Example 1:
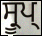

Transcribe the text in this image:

ਸ੍ਰੂਪ੍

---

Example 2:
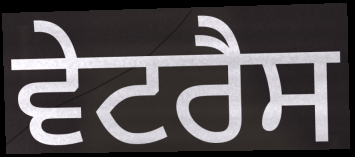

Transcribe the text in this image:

ਵੇਟਰੈਸ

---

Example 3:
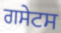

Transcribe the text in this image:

ਗਸੇਟਸ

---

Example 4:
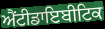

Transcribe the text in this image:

ਐਂਟੀਡਾਇਬੀਟਿਕ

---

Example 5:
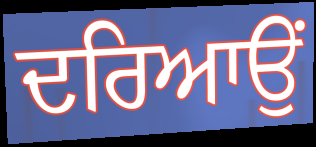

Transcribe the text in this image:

ਦਰਿਆਉਂ